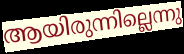
ആയിരുന്നില്ലെന്നു